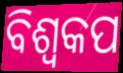
ବିଶ୍ବକପ